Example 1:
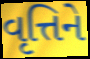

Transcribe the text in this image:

વૃત્તિને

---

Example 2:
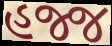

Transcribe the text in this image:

હજ્જ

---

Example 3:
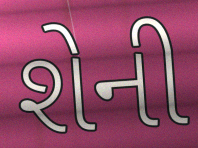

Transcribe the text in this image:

શેની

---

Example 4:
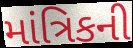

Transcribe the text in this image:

માંત્રિકની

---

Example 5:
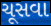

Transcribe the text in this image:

ચૂસવા